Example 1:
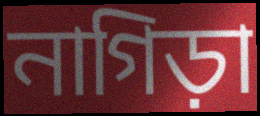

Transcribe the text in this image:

নাগিড়া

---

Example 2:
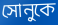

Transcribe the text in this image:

সোনুকে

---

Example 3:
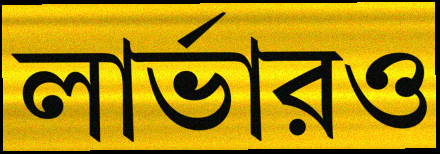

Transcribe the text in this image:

লার্ভারও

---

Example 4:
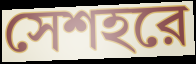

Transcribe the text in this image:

সেশহরে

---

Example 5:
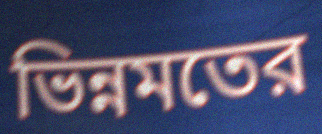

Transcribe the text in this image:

ভিন্নমতের